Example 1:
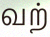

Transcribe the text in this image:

வற்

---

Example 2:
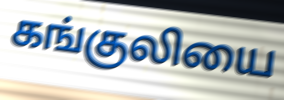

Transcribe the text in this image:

கங்குலியை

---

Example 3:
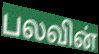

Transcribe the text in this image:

பலவின்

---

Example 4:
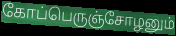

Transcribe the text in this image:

கோப்பெருஞ்சோழனும்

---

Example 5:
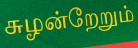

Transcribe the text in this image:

சுழன்றேறும்